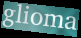
glioma